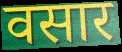
वसार